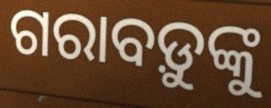
ଗରାବଡ଼ୁଙ୍କୁ